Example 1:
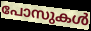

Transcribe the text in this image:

പോസുകൾ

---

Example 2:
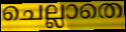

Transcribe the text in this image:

ചെല്ലാതെ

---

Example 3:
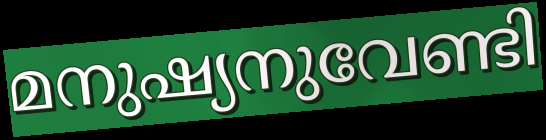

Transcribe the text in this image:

മനുഷ്യനുവേണ്ടി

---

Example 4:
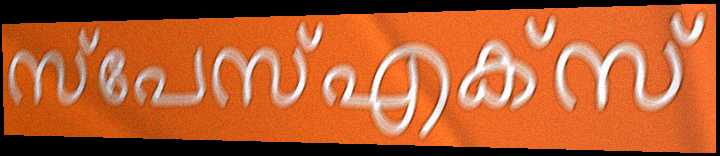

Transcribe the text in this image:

സ്പേസ്എക്സ്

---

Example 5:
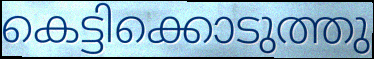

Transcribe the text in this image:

കെട്ടിക്കൊടുത്തു